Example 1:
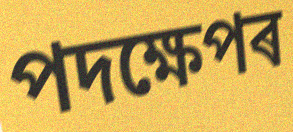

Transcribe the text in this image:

পদক্ষেপৰ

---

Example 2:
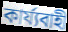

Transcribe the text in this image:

কাৰ্য্যবাহী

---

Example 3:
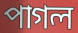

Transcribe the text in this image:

পাগল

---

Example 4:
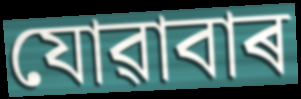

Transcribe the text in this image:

যোৱাবাৰ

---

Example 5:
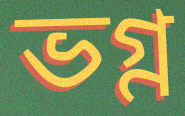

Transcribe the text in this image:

ভগ্ন